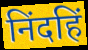
निंदहिं